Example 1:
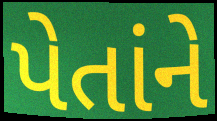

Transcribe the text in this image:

પેતાંને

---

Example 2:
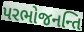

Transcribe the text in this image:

પરભોજનન્તિ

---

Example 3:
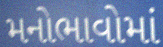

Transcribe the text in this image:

મનોભાવોમાં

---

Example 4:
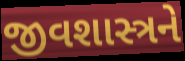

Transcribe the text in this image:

જીવશાસ્ત્રને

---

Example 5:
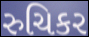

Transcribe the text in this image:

રુચિકર